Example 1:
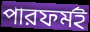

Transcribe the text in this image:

পারফর্মই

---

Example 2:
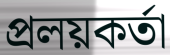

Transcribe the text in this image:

প্রলয়কর্তা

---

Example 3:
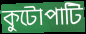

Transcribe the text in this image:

কুটোপাটি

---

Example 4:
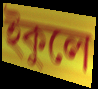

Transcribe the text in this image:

ইকুলে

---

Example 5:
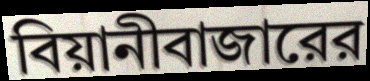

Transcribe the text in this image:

বিয়ানীবাজারের